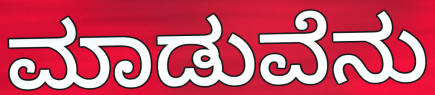
ಮಾಡುವೆನು